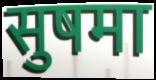
सुषमा